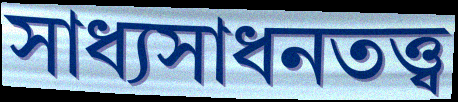
সাধ্যসাধনতত্ত্ব